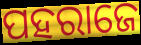
ପହରାଜେ